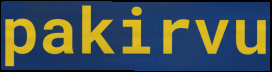
pakirvu